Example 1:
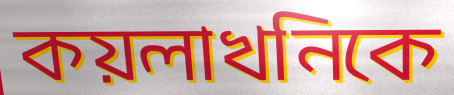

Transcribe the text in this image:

কয়লাখনিকে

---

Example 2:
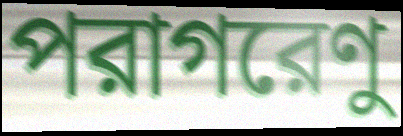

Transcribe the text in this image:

পরাগরেণু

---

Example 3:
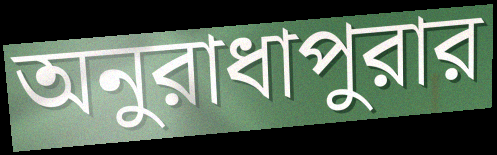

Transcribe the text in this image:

অনুরাধাপুরার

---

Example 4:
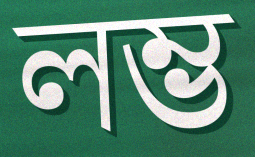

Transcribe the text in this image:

লম্ভ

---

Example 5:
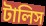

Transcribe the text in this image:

টালিস